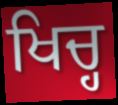
ਖਿਚ੍ਹ